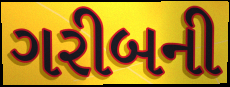
ગરીબની